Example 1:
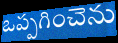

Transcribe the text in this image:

ఒప్పగించెను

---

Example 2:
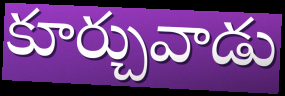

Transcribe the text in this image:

కూర్చువాడు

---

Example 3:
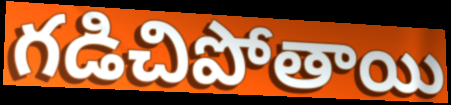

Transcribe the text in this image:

గడిచిపోతాయి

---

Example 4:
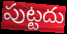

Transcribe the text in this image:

పుట్టదు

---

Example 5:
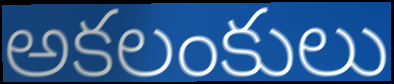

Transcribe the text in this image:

అకలంకులు